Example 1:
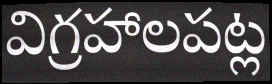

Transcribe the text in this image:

విగ్రహాలపట్ల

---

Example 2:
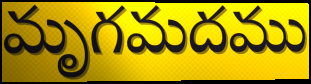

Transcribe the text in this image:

మృగమదము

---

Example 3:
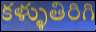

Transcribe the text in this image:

కళ్ళుతిరిగి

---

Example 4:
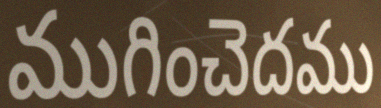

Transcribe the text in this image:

ముగించెదము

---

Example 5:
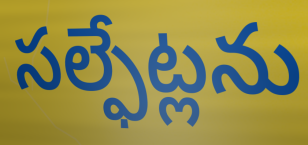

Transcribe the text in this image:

సల్ఫేట్లను